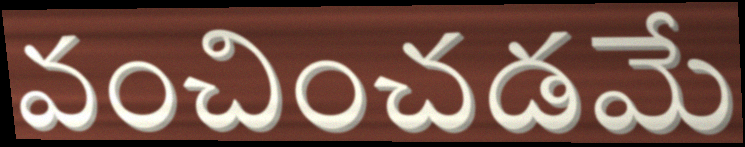
వంచించడమే